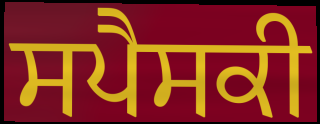
ਸਪੈਸਕੀ